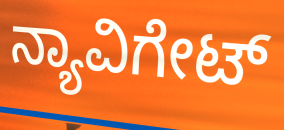
ನ್ಯಾವಿಗೇಟ್